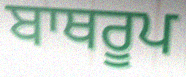
ਬਾਥਰੂਪ